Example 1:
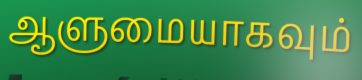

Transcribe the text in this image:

ஆளுமையாகவும்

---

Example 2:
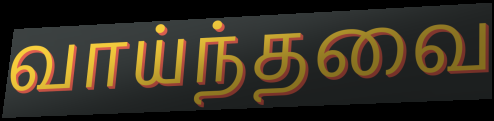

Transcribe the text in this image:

வாய்ந்தவை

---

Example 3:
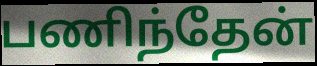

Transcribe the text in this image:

பணிந்தேன்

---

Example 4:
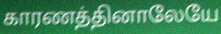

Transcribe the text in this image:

காரணத்தினாலேயே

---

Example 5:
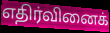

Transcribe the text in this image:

எதிர்வினைக்